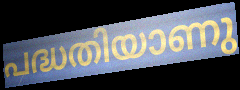
പദ്ധതിയാണു